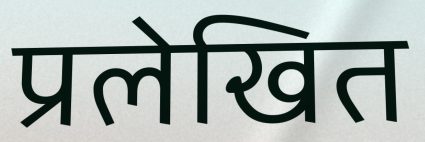
प्रलेखित